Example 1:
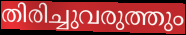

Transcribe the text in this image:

തിരിച്ചുവരുത്തും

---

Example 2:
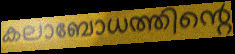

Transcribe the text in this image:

കലാബോധത്തിന്റെ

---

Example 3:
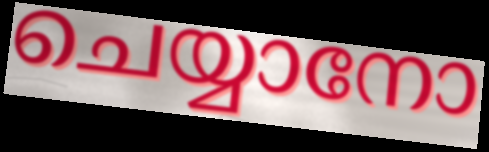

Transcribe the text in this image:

ചെയ്യാനോ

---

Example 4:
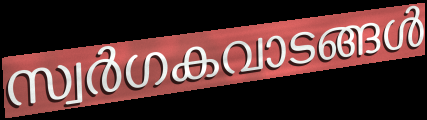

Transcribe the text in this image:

സ്വർഗകവാടങ്ങൾ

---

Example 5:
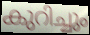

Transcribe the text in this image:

കുറിച്ചും